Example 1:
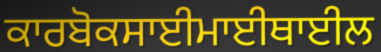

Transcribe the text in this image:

ਕਾਰਬੋਕਸਾਈਮਾਈਥਾਈਲ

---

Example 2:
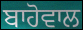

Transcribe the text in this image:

ਬਾਹੋਵਾਲ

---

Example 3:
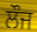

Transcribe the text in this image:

ਲੌਜ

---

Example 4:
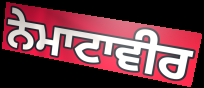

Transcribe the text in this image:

ਨੇਮਾਟਾਵੀਰ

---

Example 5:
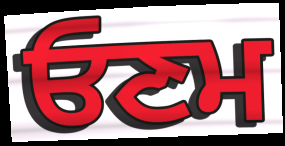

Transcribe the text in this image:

ਓਣਮ